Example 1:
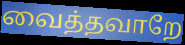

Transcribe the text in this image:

வைத்தவாறே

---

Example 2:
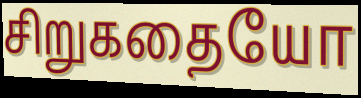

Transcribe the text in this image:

சிறுகதையோ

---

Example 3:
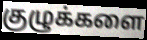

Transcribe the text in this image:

குழுக்களை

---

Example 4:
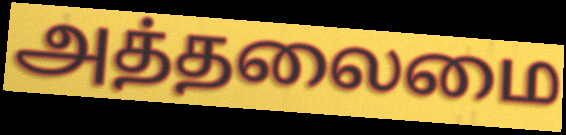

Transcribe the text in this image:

அத்தலைமை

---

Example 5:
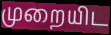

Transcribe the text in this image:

முறையிட